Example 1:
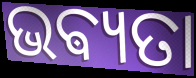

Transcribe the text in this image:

ଭଵ୍ୟତା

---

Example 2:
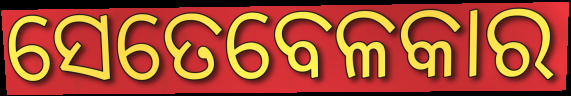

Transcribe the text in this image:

ସେତେବେଳକାର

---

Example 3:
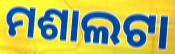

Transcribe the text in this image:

ମଶାଲଟା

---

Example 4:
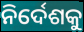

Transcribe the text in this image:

ନିର୍ଦେଶକୁ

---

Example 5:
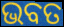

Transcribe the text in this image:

ଭବତ